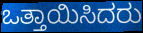
ಒತ್ತಾಯಿಸಿದರು